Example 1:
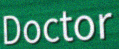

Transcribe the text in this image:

Doctor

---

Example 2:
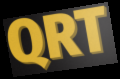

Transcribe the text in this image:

QRT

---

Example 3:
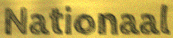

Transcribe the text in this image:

Nationaal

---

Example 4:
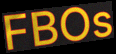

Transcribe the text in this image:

FBOs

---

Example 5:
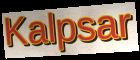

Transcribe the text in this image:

Kalpsar